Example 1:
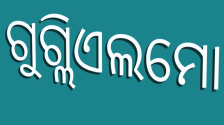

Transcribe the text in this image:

ଗୁଗ୍ଲିଏଲମୋ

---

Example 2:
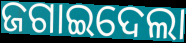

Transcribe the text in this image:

ଜଗାଇଦେଲା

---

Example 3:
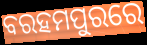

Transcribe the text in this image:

ବରହମପୁରରେ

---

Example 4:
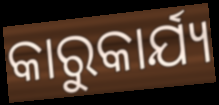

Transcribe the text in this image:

କାରୁକାର୍ଯ୍ୟ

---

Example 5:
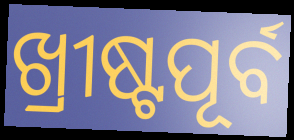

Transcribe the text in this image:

ଖ୍ରୀଷ୍ଟପୂର୍ବ